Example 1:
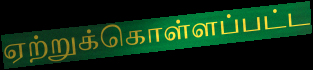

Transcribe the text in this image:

ஏற்றுக்கொள்ளப்பட்ட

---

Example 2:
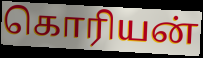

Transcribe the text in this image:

கொரியன்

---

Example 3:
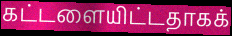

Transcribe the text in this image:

கட்டளையிட்டதாகக்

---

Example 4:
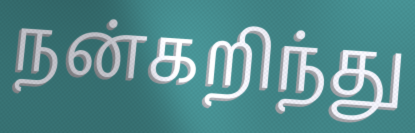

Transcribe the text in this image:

நன்கறிந்து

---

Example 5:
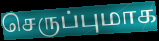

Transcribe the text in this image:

செருப்புமாக